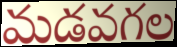
మడవగల